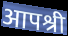
आपश्री